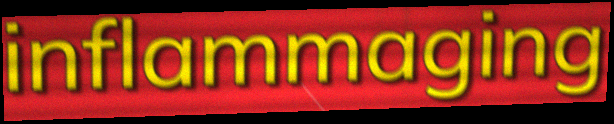
inflammaging